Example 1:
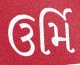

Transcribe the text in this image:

ઉર્મિ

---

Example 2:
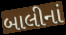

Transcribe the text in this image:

બાલીનાં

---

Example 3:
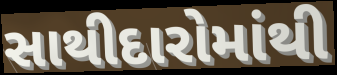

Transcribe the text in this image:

સાથીદારોમાંથી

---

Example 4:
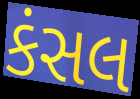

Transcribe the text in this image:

કંસલ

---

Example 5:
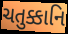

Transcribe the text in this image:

ચતુક્કાનિ